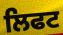
ਲਿਫਟ